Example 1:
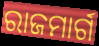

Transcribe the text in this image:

ରାଜମାର୍ଗ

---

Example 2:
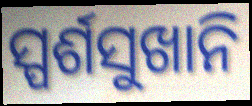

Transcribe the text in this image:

ସ୍ପର୍ଶସୁଖାନି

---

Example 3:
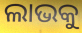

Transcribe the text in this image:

ଲାଭକୁ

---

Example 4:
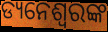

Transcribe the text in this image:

ଡ୍ୟନେଶ୍ୱରଙ୍କ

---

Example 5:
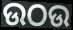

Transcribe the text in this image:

ଉଠଉ